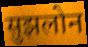
सुझलोन